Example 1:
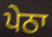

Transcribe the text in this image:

ਪੇਠਾ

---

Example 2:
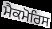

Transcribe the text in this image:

ਮੈਕਮੋਰਿਸ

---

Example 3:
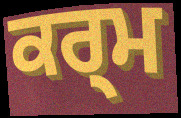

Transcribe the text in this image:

ਕਰ੍ਮ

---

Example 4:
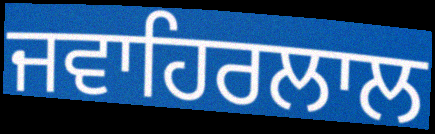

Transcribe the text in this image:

ਜਵਾਹਿਰਲਾਲ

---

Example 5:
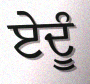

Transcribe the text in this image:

ਏਦੂੰ